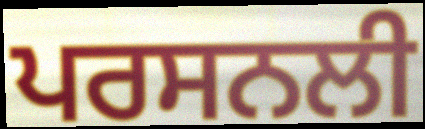
ਪਰਸਨਲੀ